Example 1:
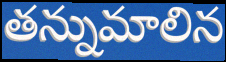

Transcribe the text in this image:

తన్నుమాలిన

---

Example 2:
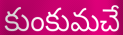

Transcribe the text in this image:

కుంకుమచే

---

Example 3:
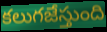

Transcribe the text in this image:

కలుగజేస్తుంది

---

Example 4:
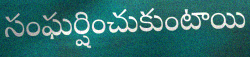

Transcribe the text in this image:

సంఘర్షించుకుంటాయి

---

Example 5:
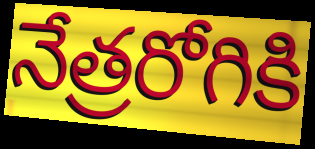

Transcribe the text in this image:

నేత్రరోగికి